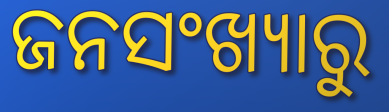
ଜନସଂଖ୍ୟାରୁ